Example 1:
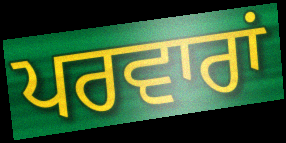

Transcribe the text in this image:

ਪਰਵਾਰਾਂ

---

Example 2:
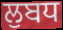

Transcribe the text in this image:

ਲੁਬਧ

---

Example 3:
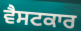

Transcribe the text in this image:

ਵੈਸਟਕਾਰ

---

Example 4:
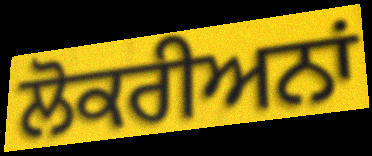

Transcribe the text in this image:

ਲੋਕਰੀਅਨਾਂ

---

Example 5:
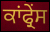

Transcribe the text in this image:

ਕਾਂਫ੍ਰੇਂਸ